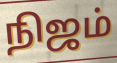
நிஜம்